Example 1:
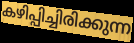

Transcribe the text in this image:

കഴിപ്പിച്ചിരിക്കുന്ന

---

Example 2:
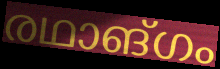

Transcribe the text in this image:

രഥാങ്ഗം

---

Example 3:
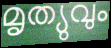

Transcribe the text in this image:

മൃത്യുവും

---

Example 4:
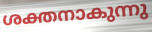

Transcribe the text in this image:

ശക്തനാകുന്നു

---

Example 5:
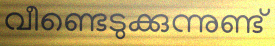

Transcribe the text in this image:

വീണ്ടെടുക്കുന്നുണ്ട്